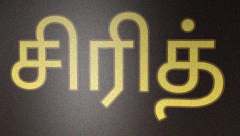
சிரித்